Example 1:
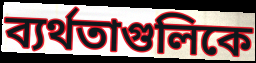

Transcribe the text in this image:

ব্যর্থতাগুলিকে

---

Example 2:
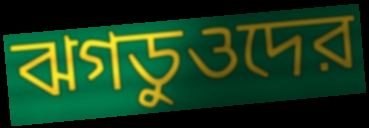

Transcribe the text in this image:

ঝগডুওদের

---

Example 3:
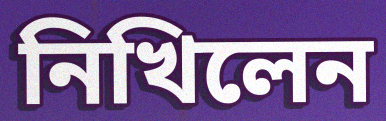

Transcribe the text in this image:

নিখিলেন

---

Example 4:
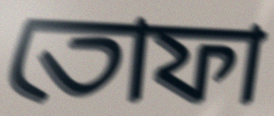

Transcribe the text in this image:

তোফা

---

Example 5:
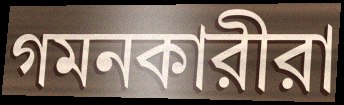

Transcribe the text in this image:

গমনকারীরা